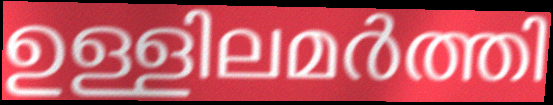
ഉള്ളിലമർത്തി